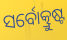
ସର୍ବୋତ୍କ୍ରୁଷ୍ଟ